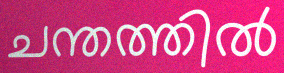
ചന്തത്തിൽ